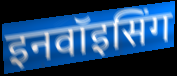
इनवॉइसिंग